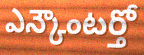
ఎన్కౌంటర్తో